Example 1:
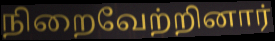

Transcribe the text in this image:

நிறைவேற்றினார்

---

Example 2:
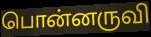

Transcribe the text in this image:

பொன்னருவி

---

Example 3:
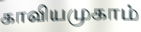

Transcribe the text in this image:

காவியமுகாம்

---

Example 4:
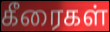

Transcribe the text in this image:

கீரைகள்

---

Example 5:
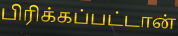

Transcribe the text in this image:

பிரிக்கப்பட்டான்